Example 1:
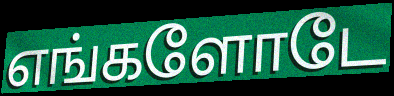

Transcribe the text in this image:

எங்களோடே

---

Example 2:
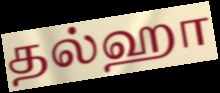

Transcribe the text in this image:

தல்ஹா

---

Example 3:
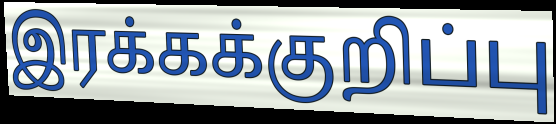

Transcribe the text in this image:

இரக்கக்குறிப்பு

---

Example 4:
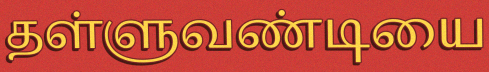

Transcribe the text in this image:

தள்ளுவண்டியை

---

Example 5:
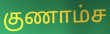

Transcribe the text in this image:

குணாம்ச